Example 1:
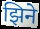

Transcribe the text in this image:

झिने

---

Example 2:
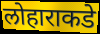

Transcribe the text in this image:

लोहाराकडे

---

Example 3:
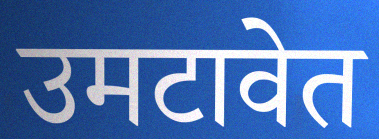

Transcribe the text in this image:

उमटावेत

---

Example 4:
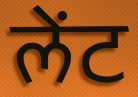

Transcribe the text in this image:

लेंट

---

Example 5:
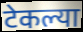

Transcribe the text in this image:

टेकल्या